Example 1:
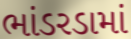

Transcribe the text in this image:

ભાંડરડામાં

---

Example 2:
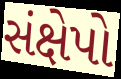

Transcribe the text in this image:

સંક્ષેપો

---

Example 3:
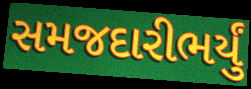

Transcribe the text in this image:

સમજદારીભર્યું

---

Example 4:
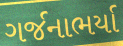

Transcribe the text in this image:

ગર્જનાભર્યા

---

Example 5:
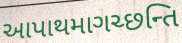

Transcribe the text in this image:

આપાથમાગચ્છન્તિ